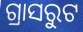
ଗ୍ରାସରୁଟ